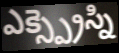
ఎక్స్ప్రెస్ని